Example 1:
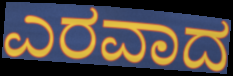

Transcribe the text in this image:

ಎರವಾದ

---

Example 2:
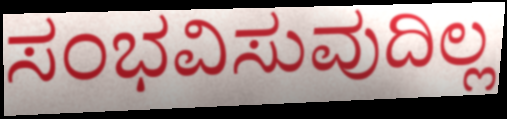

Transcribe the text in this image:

ಸಂಭವಿಸುವುದಿಲ್ಲ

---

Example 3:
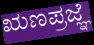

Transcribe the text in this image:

ಋಣಪ್ರಜ್ಞೆ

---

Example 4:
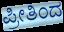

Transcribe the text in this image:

ಪ್ರೀತಿಂದ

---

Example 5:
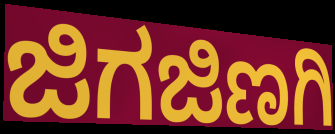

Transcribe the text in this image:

ಜಿಗಜಿಣಗಿ